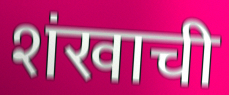
शंखाची